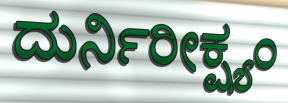
ದುರ್ನಿರೀಕ್ಷ್ಯಂ